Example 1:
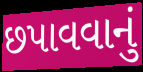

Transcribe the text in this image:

છપાવવાનું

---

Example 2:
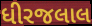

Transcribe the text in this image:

ધીરજલાલ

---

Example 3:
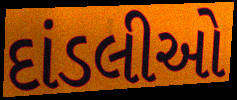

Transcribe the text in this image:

દાંડલીઓ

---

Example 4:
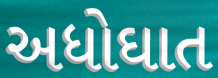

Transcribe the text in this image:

અધોઘાત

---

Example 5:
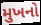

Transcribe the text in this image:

મુખનો